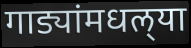
गाड्यांमधल्या